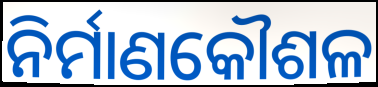
ନିର୍ମାଣକୌଶଳ